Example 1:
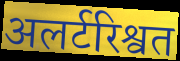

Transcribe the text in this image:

अलर्टरिश्वत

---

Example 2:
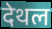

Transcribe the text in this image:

देथल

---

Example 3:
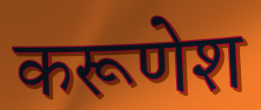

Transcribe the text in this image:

करूणेश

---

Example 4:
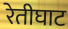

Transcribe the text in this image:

रेतीघाट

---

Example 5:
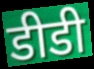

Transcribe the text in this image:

डीडी